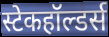
स्टेकहॉल्डर्स